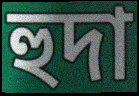
হুদা